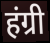
हंग्री